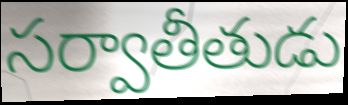
సర్వాతీతుడు